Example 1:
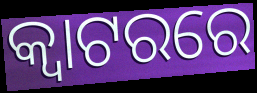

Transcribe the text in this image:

କ୍ୱାଟରରେ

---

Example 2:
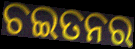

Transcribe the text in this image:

ଚଇତନର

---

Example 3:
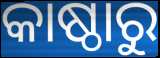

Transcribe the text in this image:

କାଷ୍ଠାରୁ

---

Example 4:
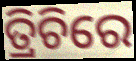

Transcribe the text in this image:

ତ୍ରିଚିରେ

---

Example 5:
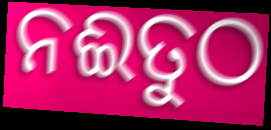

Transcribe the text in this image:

ନଈତୁଠ